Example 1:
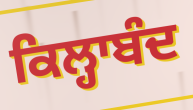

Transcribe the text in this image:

ਕਿਲ੍ਹਾਬੰਦ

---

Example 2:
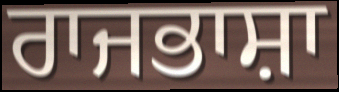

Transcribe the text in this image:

ਰਾਜਭਾਸ਼ਾ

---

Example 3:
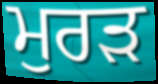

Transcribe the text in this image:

ਮੁਰੜ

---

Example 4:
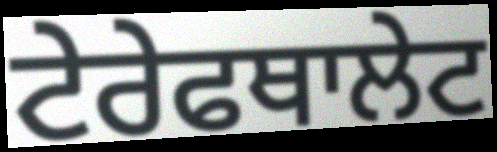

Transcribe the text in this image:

ਟੇਰੇਫਥਾਲੇਟ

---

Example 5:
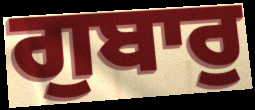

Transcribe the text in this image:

ਗੁਬਾਰੁ